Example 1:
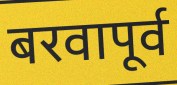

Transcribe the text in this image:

बरवापूर्व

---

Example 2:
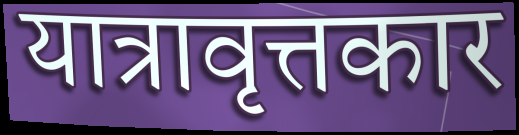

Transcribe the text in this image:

यात्रावृत्तकार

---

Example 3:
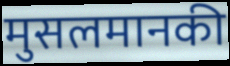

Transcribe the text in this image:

मुसलमानकी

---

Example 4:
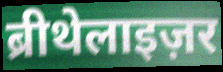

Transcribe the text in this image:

ब्रीथेलाइज़र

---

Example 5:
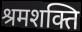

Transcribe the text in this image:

श्रमशक्ति